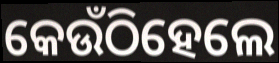
କେଉଁଠିହେଲେ